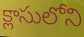
క్లాసులోని